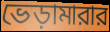
ভেড়ামারার